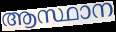
ആസ്ഥാന